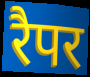
रैपर